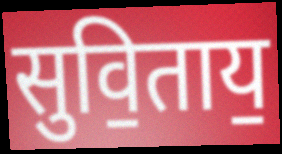
सुवि॒ताय॒